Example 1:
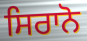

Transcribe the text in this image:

ਸਿਰਾਨੋ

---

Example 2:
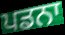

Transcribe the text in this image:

ਪਡਨਾ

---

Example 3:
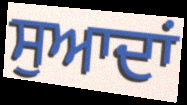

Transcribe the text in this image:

ਸੁਆਦਾਂ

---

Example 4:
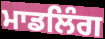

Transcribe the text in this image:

ਮਾਡਲਿੰਗ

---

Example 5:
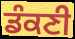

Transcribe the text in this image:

ਡੰਕਣੀ